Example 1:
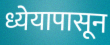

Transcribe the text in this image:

ध्येयापासून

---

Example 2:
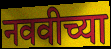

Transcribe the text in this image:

नववीच्या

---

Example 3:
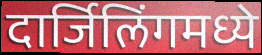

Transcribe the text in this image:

दार्जिलिंगमध्ये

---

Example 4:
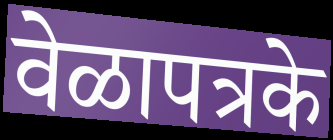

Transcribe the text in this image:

वेळापत्रके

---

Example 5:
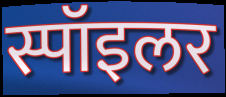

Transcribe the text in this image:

स्पॉइलर